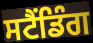
ਸਟੈਂਡਿੰਗ